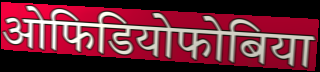
ओफिडियोफोबिया